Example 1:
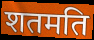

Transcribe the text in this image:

शतमति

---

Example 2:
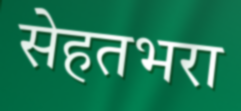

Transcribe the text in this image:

सेहतभरा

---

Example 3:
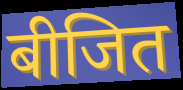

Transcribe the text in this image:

बीजित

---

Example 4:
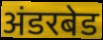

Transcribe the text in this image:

अंडरबेड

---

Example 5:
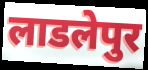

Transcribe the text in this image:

लाडलेपुर